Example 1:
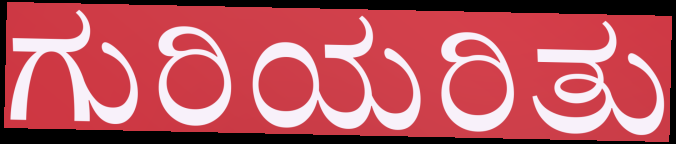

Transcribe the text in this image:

ಗುರಿಯರಿತು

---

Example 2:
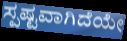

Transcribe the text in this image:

ಸ್ಪಷ್ಟವಾಗಿದೆಯೇ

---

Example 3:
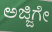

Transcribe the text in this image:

ಅಜ್ಜಿಗೇ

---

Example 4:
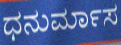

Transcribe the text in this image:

ಧನುರ್ಮಾಸ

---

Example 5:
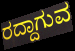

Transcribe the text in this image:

ರದ್ದಾಗುವ